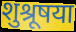
शुश्रूषया